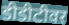
डीडीटीवर